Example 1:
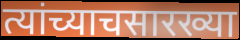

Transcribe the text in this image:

त्यांच्याचसारख्या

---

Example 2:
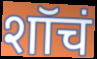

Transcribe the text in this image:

शॉचं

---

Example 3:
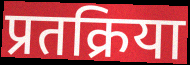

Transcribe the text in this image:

प्रतक्रिया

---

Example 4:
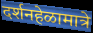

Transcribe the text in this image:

दर्शनहेळामात्रे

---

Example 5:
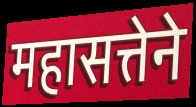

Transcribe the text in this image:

महासत्तेने